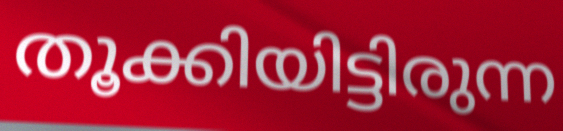
തൂക്കിയിട്ടിരുന്ന